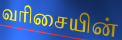
வரிசையின்